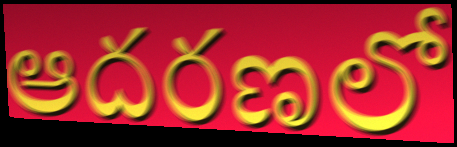
ఆదరణలో